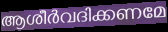
ആശീർവദിക്കണമേ